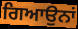
ਗਿਆਉਨਾਂ